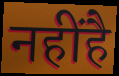
नहींहै